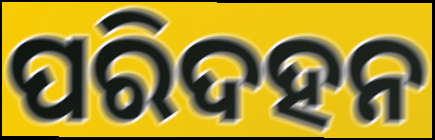
ପରିଦହନ